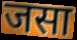
जसा